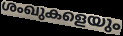
ശംഖുകളെയും